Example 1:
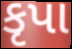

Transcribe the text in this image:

કૃપા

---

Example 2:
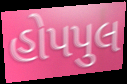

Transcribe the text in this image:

હોપપુલ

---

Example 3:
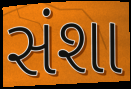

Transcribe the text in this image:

સંશા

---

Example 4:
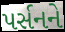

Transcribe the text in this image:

પર્સનને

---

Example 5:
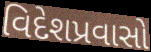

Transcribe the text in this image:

વિદેશપ્રવાસો